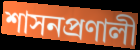
শাসনপ্রণালী